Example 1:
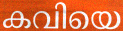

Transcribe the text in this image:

കവിയെ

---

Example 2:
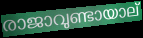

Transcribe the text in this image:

രാജാവുണ്ടായാല്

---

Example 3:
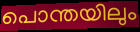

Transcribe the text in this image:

പൊന്തയിലും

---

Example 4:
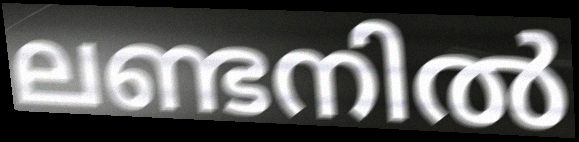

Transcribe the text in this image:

ലണ്ടനിൽ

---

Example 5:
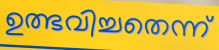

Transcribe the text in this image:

ഉത്ഭവിച്ചതെന്ന്